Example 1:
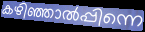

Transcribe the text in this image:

കഴിഞ്ഞാൽപ്പിന്നെ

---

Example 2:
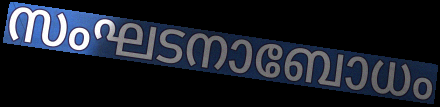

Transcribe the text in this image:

സംഘടനാബോധം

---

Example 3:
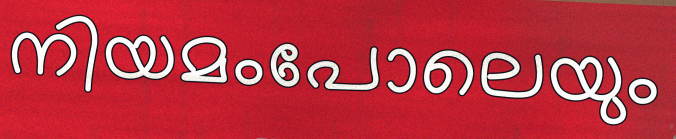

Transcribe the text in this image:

നിയമംപോലെയും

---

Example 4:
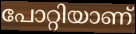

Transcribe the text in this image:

പോറ്റിയാണ്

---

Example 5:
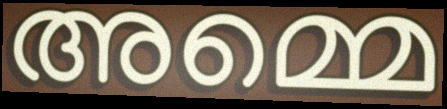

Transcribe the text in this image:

അമ്മെ